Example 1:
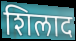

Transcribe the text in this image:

शिलाद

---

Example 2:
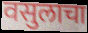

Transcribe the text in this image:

वसुलाचा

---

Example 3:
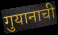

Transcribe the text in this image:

गुयानाची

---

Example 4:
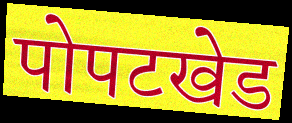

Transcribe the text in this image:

पोपटखेड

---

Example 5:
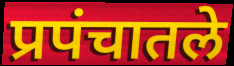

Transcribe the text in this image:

प्रपंचातले